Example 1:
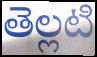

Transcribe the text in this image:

తెల్లటి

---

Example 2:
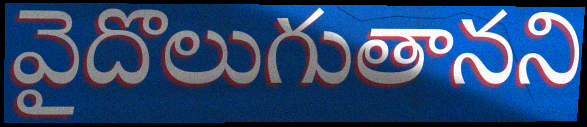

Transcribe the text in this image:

వైదొలుగుతానని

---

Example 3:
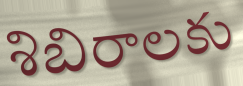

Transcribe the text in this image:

శిబిరాలకు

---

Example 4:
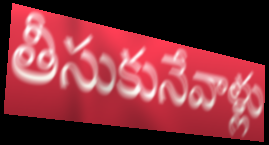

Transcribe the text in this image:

తీసుకునేవాళ్లు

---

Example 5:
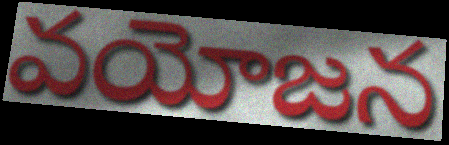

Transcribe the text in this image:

వయోజన